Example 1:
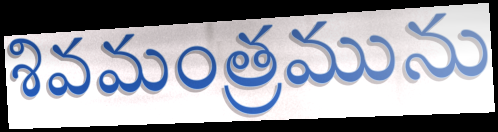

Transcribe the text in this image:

శివమంత్రమును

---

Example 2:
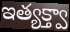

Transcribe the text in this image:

ఇత్యక్త్వా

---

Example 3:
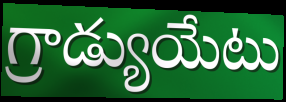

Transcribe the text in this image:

గ్రాడ్యుయేటు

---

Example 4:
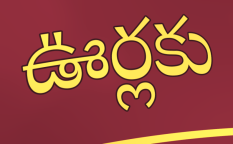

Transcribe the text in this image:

ఊర్లకు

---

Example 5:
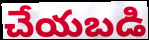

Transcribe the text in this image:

చేయబడి